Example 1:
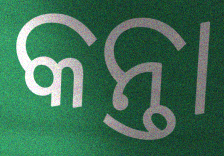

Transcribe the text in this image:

କନ୍ତା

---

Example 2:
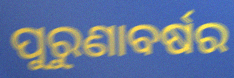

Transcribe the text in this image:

ପୁରୁଣାବର୍ଷର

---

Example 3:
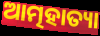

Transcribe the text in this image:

ଆତ୍ମହାତ୍ୟା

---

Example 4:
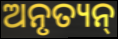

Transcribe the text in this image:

ଅନୃତ୍ୟନ୍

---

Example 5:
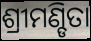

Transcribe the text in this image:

ଶ୍ରୀମଣ୍ଡିତା